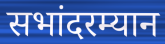
सभांदरम्यान